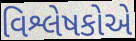
વિશ્લેષકોએ